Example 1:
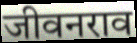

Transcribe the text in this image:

जीवनराव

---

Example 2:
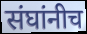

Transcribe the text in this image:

संघांनीच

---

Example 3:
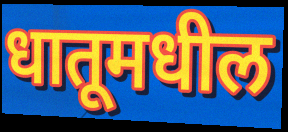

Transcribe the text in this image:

धातूमधील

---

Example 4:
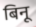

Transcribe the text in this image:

बिनू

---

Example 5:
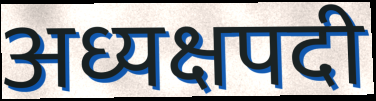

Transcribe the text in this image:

अध्यक्षपदी